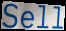
Sell